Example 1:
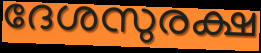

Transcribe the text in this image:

ദേശസുരക്ഷ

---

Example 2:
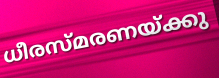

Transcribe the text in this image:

ധീരസ്മരണയ്ക്കു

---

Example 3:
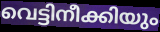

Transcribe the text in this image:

വെട്ടിനീക്കിയും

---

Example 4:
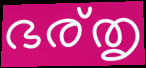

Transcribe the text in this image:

ഭര്തൃ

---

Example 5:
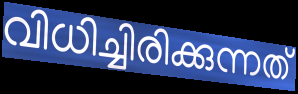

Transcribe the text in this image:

വിധിച്ചിരിക്കുന്നത്